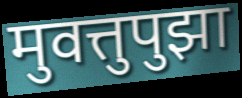
मुवत्तुपुझा